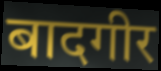
बादगीर